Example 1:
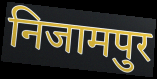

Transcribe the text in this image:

निजामपुर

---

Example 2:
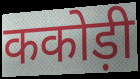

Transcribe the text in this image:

ककोड़ी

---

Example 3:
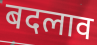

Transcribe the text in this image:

बदलाव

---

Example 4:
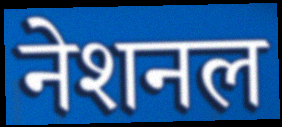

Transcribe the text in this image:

नेशनल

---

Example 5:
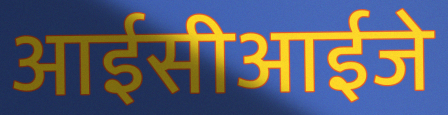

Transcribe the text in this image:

आईसीआईजे